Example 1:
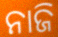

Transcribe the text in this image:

ନାଜି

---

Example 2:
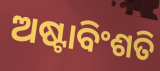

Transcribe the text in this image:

ଅଷ୍ଟାବିଂଶତି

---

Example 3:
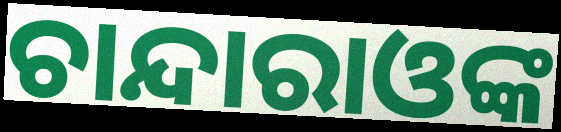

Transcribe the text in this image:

ଚାନ୍ଦାରାଓଙ୍କ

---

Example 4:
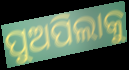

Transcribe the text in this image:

ପୁଅପିଲାକୁ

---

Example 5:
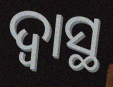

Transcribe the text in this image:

ଦ୍ୱାସ୍ଥ